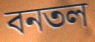
বনতল